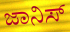
ಜಾನಿಸ್